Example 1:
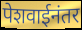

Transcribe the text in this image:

पेशवाईनंतर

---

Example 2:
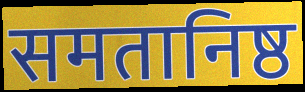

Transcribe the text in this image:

समतानिष्ठ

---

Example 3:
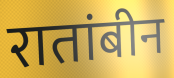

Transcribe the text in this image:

रातांबीन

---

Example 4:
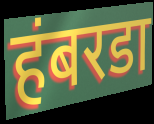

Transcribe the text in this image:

हंबरडा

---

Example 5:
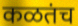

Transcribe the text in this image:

कळतंच